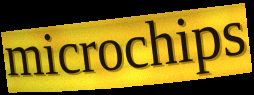
microchips